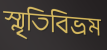
স্মৃতিবিভ্রম